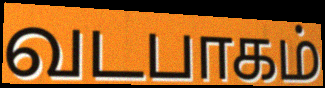
வடபாகம்